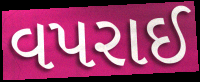
વપરાઈ